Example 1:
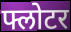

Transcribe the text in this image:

फ्लोटर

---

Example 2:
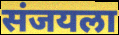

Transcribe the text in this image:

संजयला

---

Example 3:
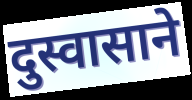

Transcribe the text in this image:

दुस्वासाने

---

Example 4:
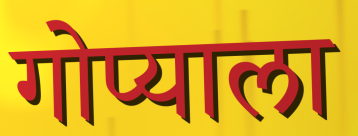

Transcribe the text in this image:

गोप्याला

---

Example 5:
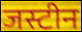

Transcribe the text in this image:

जस्टीन